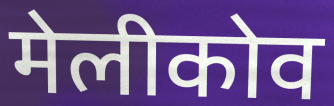
मेलीकोव